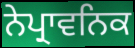
ਨੇਪ੍ਰਾਵਨਿਕ